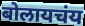
बोलायचंय